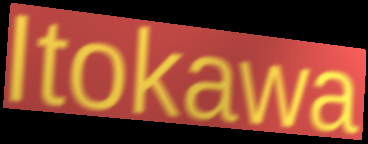
Itokawa